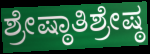
ಶ್ರೇಷ್ಠಾತಿಶ್ರೇಷ್ಠ